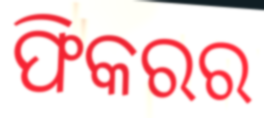
ଫିକରର